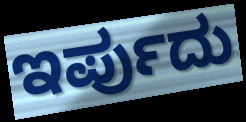
ಇರ್ಪುದು